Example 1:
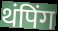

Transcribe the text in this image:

थंपिंग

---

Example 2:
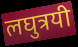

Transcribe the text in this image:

लघुत्रयी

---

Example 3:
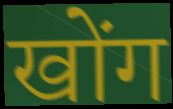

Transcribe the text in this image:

खोंग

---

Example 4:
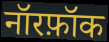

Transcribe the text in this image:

नॉरफ़ॉक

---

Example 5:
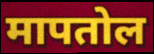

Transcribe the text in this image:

मापतोल